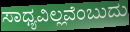
ಸಾಧ್ಯವಿಲ್ಲವೆಂಬುದು